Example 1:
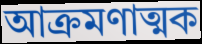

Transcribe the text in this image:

আক্ৰমণাত্মক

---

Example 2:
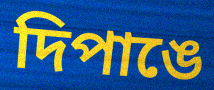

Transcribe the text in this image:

দিপাঙে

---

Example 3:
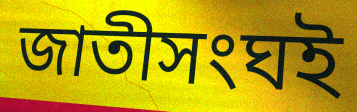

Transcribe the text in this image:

জাতীসংঘই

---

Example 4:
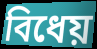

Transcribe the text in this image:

বিধেয়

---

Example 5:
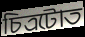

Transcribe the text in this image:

চিত্ৰটোত